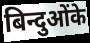
बिन्दुओंके